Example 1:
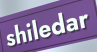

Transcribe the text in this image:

shiledar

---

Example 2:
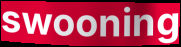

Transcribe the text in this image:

swooning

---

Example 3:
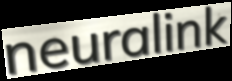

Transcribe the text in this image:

neuralink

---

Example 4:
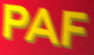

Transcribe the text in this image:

PAF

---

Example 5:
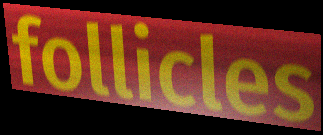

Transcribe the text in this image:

follicles